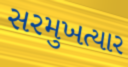
સરમુખત્યાર